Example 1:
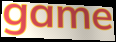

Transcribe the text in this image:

game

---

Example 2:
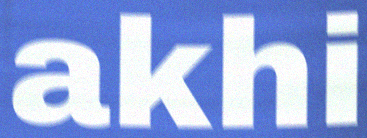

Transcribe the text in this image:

akhi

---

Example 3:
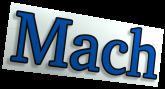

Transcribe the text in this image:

Mach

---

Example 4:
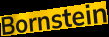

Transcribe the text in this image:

Bornstein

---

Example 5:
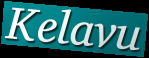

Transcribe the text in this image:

Kelavu